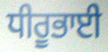
ਧੀਰੂਭਾਈ